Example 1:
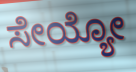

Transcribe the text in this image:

ಸೇಯ್ಯೋ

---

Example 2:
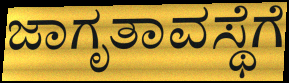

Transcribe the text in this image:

ಜಾಗೃತಾವಸ್ಥೆಗೆ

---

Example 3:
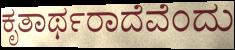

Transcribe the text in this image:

ಕೃತಾರ್ಥರಾದೆವೆಂದು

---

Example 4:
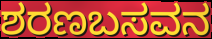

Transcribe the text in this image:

ಶರಣಬಸವನ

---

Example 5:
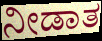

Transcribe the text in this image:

ನೀಡಾತ